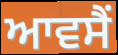
ਆਵਸੈਂ